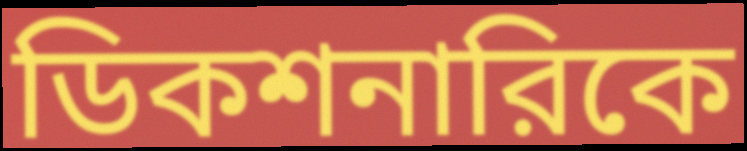
ডিকশনারিকে